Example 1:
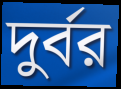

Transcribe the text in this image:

দুর্বর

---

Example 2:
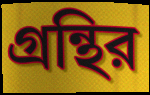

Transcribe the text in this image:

গ্রন্থির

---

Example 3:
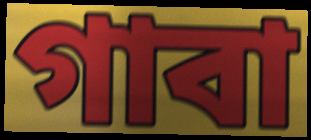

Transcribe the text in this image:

গাবা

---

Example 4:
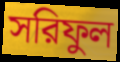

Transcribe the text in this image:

সরিফুল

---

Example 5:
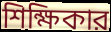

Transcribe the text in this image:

শিক্ষিকার